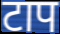
टाप